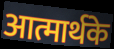
आत्मार्थके